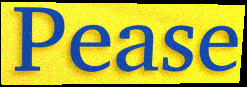
Pease